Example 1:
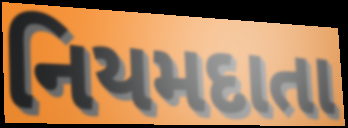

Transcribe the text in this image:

નિયમદાતા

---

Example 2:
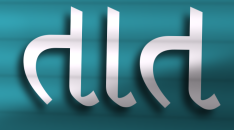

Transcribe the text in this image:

તાત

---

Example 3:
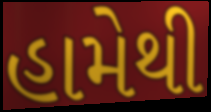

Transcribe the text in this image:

હામેથી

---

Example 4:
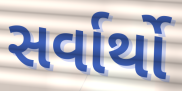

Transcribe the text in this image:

સર્વાર્થો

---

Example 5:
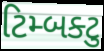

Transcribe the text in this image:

ટિમ્બક્ટુ